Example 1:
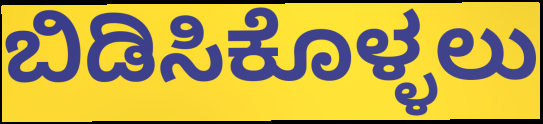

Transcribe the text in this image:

ಬಿಡಿಸಿಕೊಳ್ಳಲು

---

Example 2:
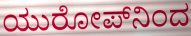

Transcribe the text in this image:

ಯುರೋಪ್‌ನಿಂದ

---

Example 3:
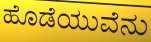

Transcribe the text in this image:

ಹೊಡೆಯುವೆನು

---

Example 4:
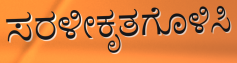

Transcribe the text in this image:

ಸರಳೀಕೃತಗೊಳಿಸಿ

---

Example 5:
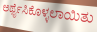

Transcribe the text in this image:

ಅರ್ಥೈಸಿಕೊಳ್ಳಲಾಯಿತು